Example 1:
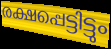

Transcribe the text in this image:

രക്ഷപ്പെട്ടിട്ടും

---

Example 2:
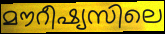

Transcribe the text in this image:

മൗറീഷ്യസിലെ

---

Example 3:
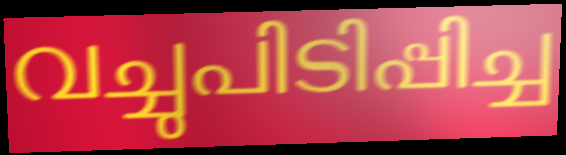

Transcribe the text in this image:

വച്ചുപിടിപ്പിച്ച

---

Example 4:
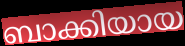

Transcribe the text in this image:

ബാക്കിയായ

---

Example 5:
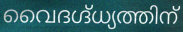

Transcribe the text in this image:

വൈദഗ്ദ്ധ്യത്തിന്